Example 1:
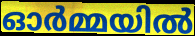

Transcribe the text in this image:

ഓർമ്മയിൽ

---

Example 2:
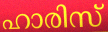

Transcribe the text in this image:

ഹാരിസ്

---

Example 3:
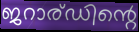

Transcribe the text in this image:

ജറാര്ഡിന്റെ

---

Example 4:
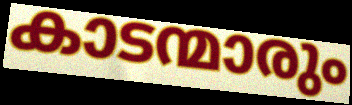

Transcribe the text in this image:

കാടന്മാരും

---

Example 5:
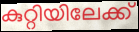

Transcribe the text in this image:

കുറ്റിയിലേക്ക്